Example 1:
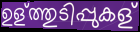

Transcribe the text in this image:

ഉള്ത്തുടിപ്പുകള്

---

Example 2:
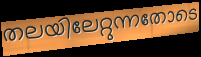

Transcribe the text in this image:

തലയിലേറ്റുന്നതോടെ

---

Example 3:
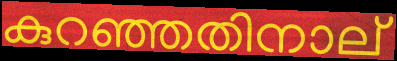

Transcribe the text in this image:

കുറഞ്ഞതിനാല്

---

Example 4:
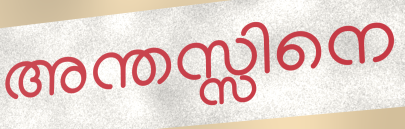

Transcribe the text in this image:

അന്തസ്സിനെ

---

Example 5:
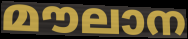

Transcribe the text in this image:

മൗലാന